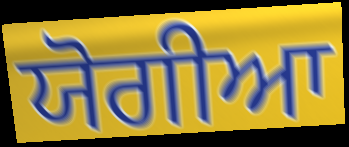
ਯੋਗੀਆ